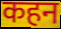
कहन